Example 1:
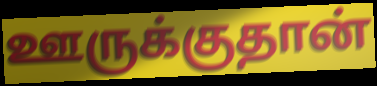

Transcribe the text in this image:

ஊருக்குதான்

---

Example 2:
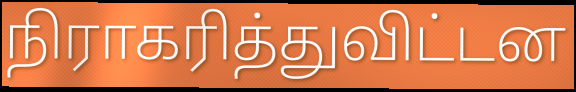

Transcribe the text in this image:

நிராகரித்துவிட்டன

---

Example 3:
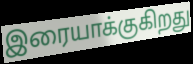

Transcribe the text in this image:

இரையாக்குகிறது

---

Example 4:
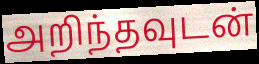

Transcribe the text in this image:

அறிந்தவுடன்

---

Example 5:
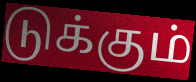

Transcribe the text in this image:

டுக்கும்